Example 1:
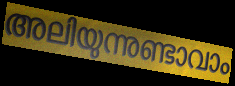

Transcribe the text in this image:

അലിയുന്നുണ്ടാവാം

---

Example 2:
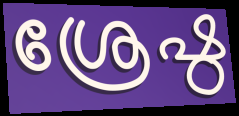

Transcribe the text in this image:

ശ്രേഷ്ഠ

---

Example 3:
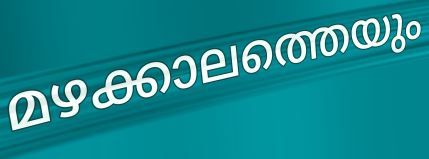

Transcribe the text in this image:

മഴക്കാലത്തെയും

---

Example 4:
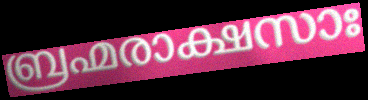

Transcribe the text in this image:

ബ്രഹ്മരാക്ഷസാഃ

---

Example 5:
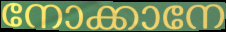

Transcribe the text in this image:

നോക്കാനേ